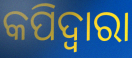
କପିଦ୍ୱାରା